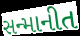
સન્માનીત